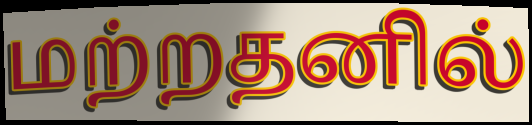
மற்றதனில்